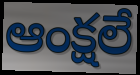
ఆంక్షలే